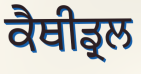
ਕੈਥੀਡ੍ਰਲ